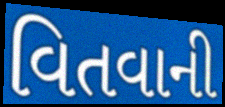
વિતવાની